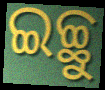
ଇଚ୍ଛୁ